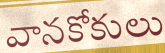
వానకోకులు